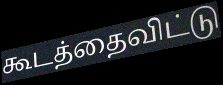
கூடத்தைவிட்டு